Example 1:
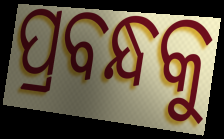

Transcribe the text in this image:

ପ୍ରବନ୍ଧକୁ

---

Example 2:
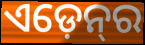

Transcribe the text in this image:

ଏଡ଼େନ୍‍ର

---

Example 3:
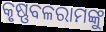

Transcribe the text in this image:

କୃଷ୍ଣବଳରାମଙ୍କୁ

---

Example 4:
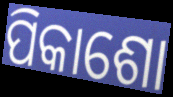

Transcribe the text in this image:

ପିକାଶୋ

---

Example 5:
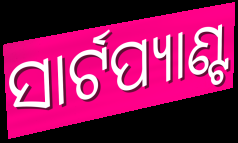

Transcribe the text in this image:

ସାର୍ଟପ୍ୟାଣ୍ଟ